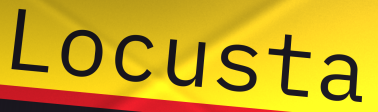
Locusta